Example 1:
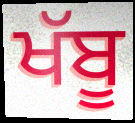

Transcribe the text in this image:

ਖੱਬੂ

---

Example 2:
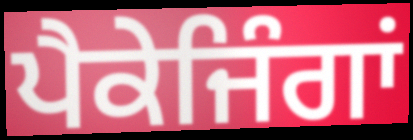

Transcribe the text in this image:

ਪੈਕੇਜਿੰਗਾਂ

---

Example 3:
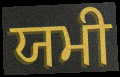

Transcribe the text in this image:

ਯਮੀ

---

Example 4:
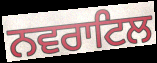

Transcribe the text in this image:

ਨਵਰਾਟਿਲ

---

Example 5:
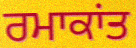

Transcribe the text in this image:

ਰਮਾਕਾਂਤ